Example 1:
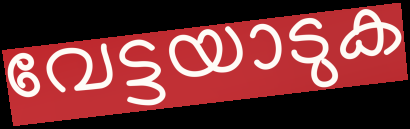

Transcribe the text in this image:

വേട്ടയാടുക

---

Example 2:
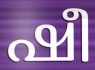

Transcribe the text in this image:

ഷീ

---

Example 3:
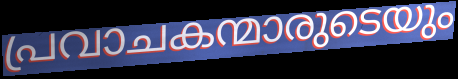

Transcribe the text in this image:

പ്രവാചകന്മാരുടെയും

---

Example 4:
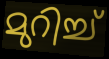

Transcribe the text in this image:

മുറിച്ച്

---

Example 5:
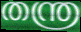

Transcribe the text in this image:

തന്ത്ര